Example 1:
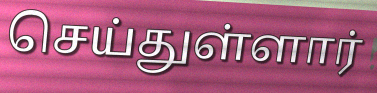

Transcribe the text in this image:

செய்துள்ளார்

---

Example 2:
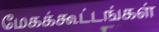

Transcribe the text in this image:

மேகக்கூட்டங்கள்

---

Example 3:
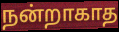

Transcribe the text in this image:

நன்றாகாத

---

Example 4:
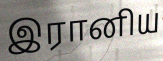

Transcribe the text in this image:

இரானிய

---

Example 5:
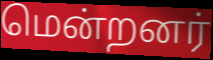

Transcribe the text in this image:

மென்றனர்